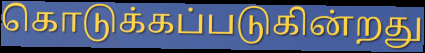
கொடுக்கப்படுகின்றது